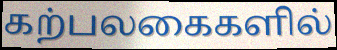
கற்பலகைகளில்